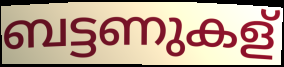
ബട്ടണുകള്